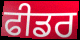
ਫੀਡਰ